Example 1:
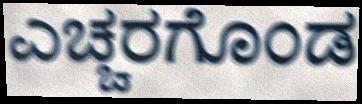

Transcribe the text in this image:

ಎಚ್ಚರಗೊಂಡ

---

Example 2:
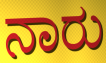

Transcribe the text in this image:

ನಾರು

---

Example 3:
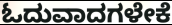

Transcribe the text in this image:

ಓದುವಾದಗಳೇಕೆ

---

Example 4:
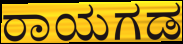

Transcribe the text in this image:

ರಾಯಗಡ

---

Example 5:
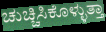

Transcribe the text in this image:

ಚುಚ್ಚಿಸಿಕೊಳ್ಳುತ್ತಾ